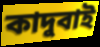
কাদুবাই